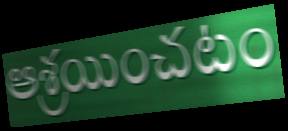
ఆశ్రయించటం